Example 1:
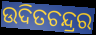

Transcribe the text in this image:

ଉଦିତଚନ୍ଦ୍ରର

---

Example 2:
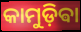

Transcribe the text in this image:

କାମୁଡ଼ିଵା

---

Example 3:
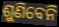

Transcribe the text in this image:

ଶୁଣିବେନି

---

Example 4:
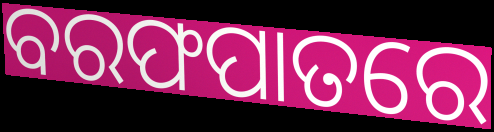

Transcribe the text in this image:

ବରଫପାତରେ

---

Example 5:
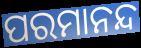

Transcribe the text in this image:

ପରମାନନ୍ଦ